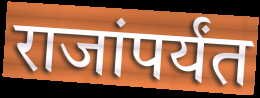
राजांपर्यंत